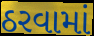
ઠરવામાં